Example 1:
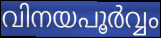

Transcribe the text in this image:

വിനയപൂർവ്വം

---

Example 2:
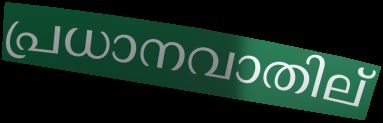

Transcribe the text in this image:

പ്രധാനവാതില്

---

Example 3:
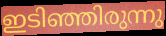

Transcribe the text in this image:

ഇടിഞ്ഞിരുന്നു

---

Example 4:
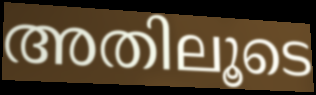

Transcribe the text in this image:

അതിലൂടെ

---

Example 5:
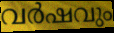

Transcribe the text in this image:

വർഷവും